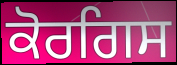
ਕੋਰਗਿਸ